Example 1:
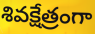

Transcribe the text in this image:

శివక్షేత్రంగా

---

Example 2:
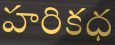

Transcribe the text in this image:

హరికధ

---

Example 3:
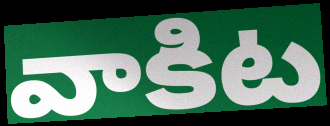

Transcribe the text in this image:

వాకిట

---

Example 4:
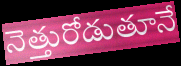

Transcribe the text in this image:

నెత్తురోడుతూనే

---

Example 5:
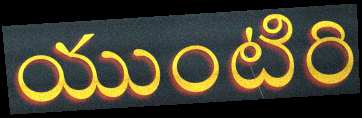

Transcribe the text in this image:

యుంటిరి